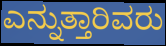
ಎನ್ನುತ್ತಾರಿವರು